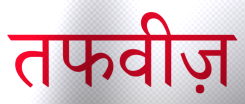
तफवीज़